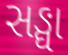
સઙ્ઘા